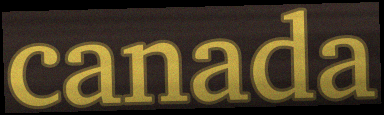
canada